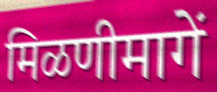
मिळणीमागें